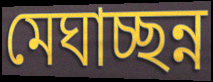
মেঘাচ্ছন্ন